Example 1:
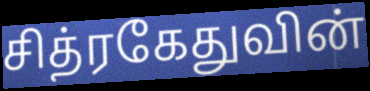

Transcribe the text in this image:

சித்ரகேதுவின்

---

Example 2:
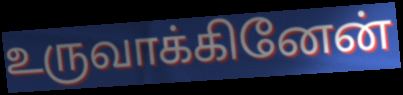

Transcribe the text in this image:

உருவாக்கினேன்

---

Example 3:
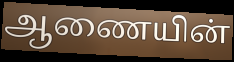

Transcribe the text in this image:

ஆணையின்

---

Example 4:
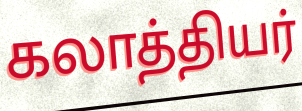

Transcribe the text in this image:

கலாத்தியர்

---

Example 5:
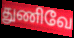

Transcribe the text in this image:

துணிவே